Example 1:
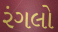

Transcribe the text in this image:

રંગલો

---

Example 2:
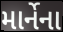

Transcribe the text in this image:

માર્નેના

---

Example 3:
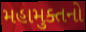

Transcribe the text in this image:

મહામુક્તનો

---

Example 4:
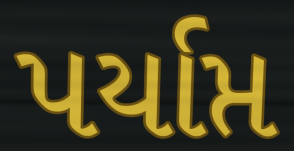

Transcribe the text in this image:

પર્યાપ્ત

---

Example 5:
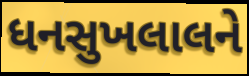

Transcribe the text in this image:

ધનસુખલાલને